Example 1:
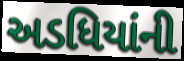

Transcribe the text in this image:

અડધિયાંની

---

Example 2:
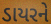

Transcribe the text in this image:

ડાયરને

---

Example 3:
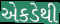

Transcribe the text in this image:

એકડેથી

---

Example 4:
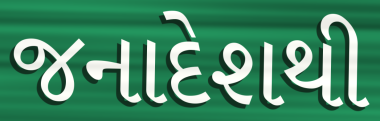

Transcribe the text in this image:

જનાદેશથી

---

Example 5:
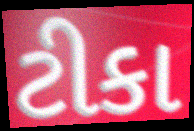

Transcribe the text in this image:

ટીકા